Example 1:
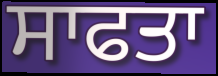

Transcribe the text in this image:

ਸਾਫਤਾ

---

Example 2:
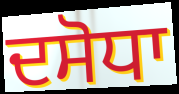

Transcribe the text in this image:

ਦਸੋਧਾ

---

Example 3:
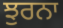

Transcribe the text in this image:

ਝੁਰਨਾ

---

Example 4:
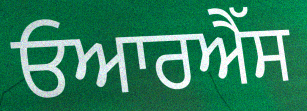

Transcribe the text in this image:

ਓਆਰਐੱਸ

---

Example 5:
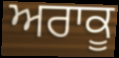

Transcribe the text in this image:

ਅਰਾਕੂ